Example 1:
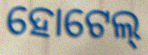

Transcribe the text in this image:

ହୋଟେଲ୍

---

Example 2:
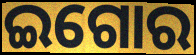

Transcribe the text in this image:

ଇଗୋର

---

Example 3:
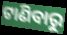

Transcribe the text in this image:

ଟାଣିବାରୁ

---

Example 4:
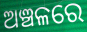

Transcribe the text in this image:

ଅଞ୍ଚଳରେ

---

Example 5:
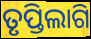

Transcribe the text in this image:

ତୃପ୍ତିଲାଗି